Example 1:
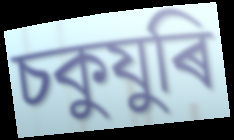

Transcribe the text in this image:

চকুযুৰি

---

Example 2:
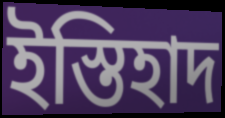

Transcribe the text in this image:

ইস্তিহাদ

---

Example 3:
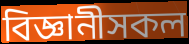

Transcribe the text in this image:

বিজ্ঞানীসকল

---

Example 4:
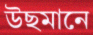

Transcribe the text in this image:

উছমানে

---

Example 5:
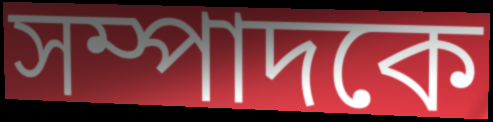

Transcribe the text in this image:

সম্পাদকে